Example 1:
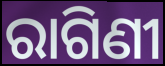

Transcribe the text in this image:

ରାଗିଣୀ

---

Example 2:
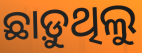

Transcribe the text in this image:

ଛାଡ଼ୁଥିଲୁ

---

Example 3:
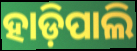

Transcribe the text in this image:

ହାଡ଼ିପାଲି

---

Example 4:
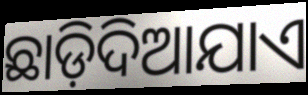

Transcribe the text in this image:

ଛାଡ଼ିଦିଆଯାଏ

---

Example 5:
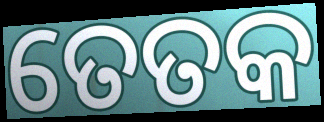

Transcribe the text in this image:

ତେତକ